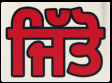
ਜਿੱਤੋ